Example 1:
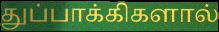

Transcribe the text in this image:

துப்பாக்கிகளால்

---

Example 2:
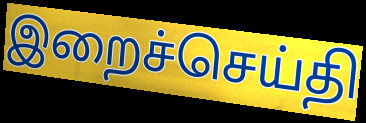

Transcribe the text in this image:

இறைச்செய்தி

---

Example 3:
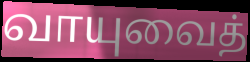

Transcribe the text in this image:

வாயுவைத்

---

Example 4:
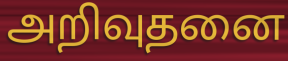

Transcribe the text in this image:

அறிவுதனை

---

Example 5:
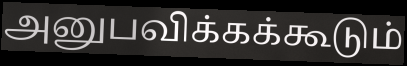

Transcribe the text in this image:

அனுபவிக்கக்கூடும்